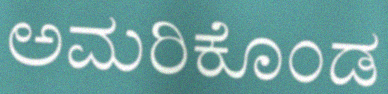
ಅಮರಿಕೊಂಡ